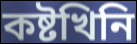
কষ্টখিনি